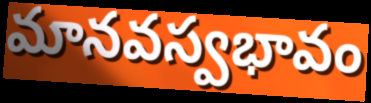
మానవస్వభావం